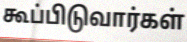
கூப்பிடுவார்கள்